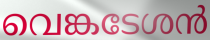
വെങ്കടേശൻ